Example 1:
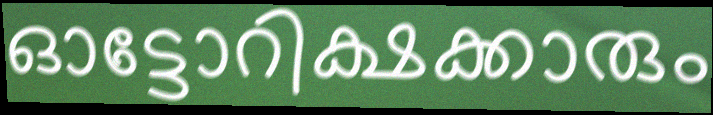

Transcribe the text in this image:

ഓട്ടോറിക്ഷക്കാരും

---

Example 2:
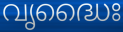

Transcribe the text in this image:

വൃദ്ധൈഃ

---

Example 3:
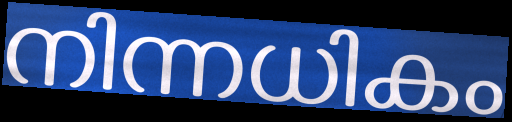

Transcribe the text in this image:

നിന്നധികം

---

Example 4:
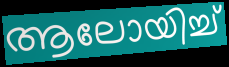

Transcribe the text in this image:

ആലോയിച്ച്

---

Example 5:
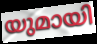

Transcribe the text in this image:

യുമായി